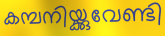
കമ്പനിയ്ക്കുവേണ്ടി